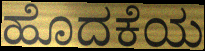
ಹೊದಕೆಯ